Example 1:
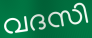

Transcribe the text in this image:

വദസി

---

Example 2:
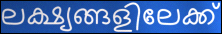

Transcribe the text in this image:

ലക്ഷ്യങ്ങളിലേക്ക്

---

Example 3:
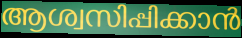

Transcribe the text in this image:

ആശ്വസിപ്പിക്കാൻ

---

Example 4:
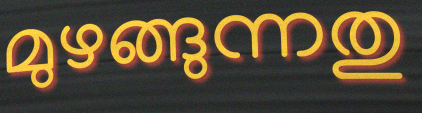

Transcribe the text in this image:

മുഴങ്ങുന്നതു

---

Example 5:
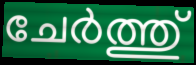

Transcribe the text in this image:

ചേർത്തു്